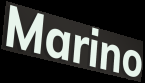
Marino